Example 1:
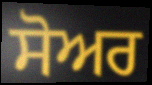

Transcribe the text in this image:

ਸੋਅਰ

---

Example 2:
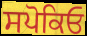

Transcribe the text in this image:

ਸਪੋਕਿਓ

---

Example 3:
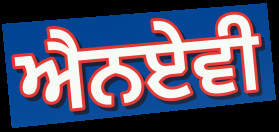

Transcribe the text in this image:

ਐਨਏਵੀ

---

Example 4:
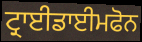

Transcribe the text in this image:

ਟ੍ਰਾਈਡਾਈਮਫੋਨ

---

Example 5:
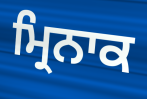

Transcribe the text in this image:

ਮ੍ਰਿਨਾਕ